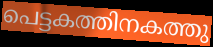
പെട്ടകത്തിനകത്തു